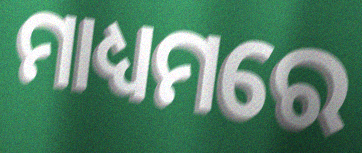
ମାଧ୍ୟମରେ